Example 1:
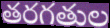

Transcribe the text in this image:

తరగతుల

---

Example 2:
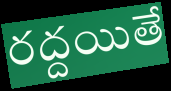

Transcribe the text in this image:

రద్దయితే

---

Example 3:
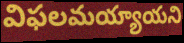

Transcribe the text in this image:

విఫలమయ్యాయని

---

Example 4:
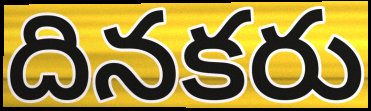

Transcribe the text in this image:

దినకరు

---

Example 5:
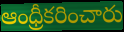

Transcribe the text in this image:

ఆంధ్రీకరించారు